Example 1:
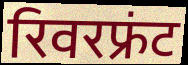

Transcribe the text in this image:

रिवरफ्रंट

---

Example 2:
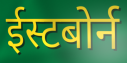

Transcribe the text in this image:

ईस्टबोर्न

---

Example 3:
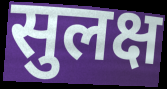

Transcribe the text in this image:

सुलक्ष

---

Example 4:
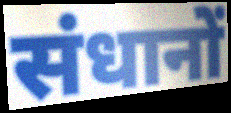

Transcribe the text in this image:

संधानों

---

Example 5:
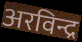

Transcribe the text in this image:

अरविन्द्र